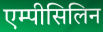
एम्पीसिलिन